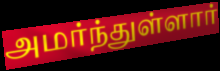
அமர்ந்துள்ளார்